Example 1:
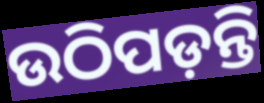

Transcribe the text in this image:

ଉଠିପଡ଼ନ୍ତି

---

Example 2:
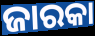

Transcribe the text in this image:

ଜାରକା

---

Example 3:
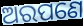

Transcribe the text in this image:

ଅରପଣେ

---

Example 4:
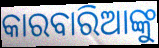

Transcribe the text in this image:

କାରବାରିଆଙ୍କୁ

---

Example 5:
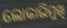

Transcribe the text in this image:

ଲୋକାଭିମୁଖି